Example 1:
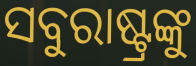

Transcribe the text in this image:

ସବୁରାଷ୍ଟ୍ରଙ୍କୁ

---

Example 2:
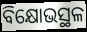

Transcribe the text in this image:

ବିକ୍ଷୋଭସ୍ଥଳ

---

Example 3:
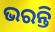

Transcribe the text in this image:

ଭରନ୍ତି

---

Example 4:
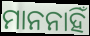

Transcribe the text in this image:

ମାନନାହିଁ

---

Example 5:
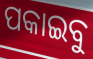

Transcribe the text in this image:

ପକାଇବୁ